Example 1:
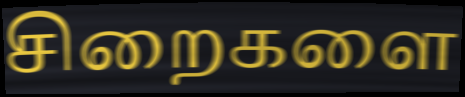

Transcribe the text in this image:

சிறைகளை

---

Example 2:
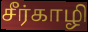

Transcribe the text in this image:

சீர்காழி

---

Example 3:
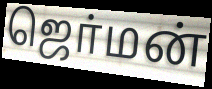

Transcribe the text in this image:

ஜெர்மன்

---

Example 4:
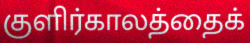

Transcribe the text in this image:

குளிர்காலத்தைக்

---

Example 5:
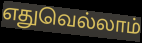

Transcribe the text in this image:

எதுவெல்லாம்